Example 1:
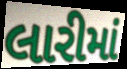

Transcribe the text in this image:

લારીમાં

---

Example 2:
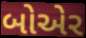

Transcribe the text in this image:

બોએર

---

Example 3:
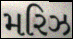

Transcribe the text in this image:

મરિઝ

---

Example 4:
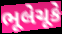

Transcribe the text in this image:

ભૂલેચૂકે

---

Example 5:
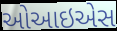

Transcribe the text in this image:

ઓઆઇએસ